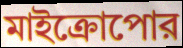
মাইক্রোপোর